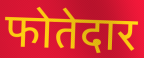
फोतेदार